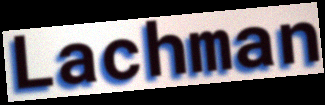
Lachman